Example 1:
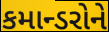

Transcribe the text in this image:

કમાન્ડરોને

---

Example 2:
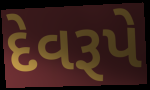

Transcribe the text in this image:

દેવરૂપે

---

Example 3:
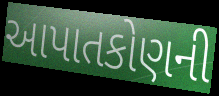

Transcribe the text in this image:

આપાતકોણની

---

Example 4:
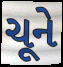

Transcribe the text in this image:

ચૂને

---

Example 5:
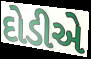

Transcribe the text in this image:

દોડીએ